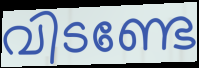
വിടണ്ടേ